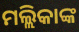
ମଲ୍ଲିକାଙ୍କ